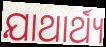
ଯାଥାର୍ଥ୍ୟ